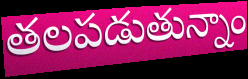
తలపడుతున్నాం